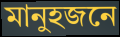
মানুহজনে